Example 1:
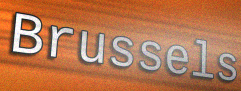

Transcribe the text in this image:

Brussels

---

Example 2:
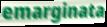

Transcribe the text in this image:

emarginata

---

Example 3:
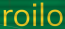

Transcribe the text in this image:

roilo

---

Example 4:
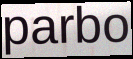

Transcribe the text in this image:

parbo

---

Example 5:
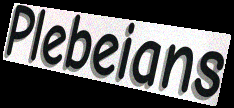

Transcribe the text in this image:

Plebeians